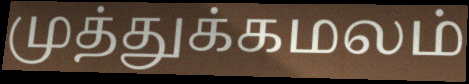
முத்துக்கமலம்